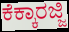
ಕೆಕ್ಕಾರಜ್ಜಿ